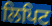
ਲਿਪਿਟ